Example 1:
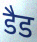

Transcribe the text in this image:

डैड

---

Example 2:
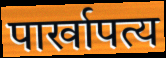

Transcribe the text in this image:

पार्खापत्य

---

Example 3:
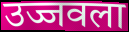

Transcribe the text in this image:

उज्‍जवला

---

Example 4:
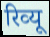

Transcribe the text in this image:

रिव्‍यू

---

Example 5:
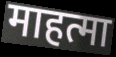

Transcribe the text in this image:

माहत्मा